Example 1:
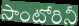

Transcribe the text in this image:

సాంటోరినీ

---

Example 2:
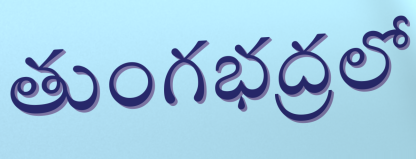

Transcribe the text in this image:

తుంగభద్రలో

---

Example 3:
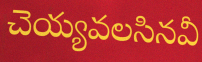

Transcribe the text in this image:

చెయ్యవలసినవీ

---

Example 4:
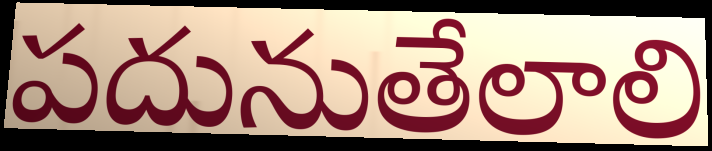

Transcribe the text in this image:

పదునుతేలాలి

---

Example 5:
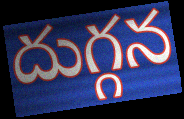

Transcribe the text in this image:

దుగ్గన